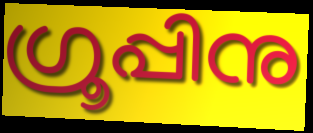
ഗ്രൂപ്പിനു